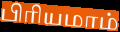
பிரியமாம்